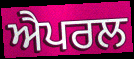
ਐਪਰਲ